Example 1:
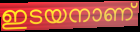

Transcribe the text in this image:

ഇടയനാണ്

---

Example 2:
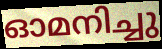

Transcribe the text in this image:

ഓമനിച്ചു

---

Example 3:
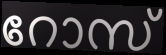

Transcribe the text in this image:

റോസ്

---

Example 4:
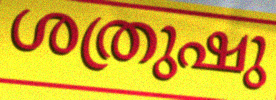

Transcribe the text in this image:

ശത്രുഷു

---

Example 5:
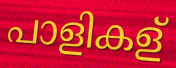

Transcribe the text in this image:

പാളികള്